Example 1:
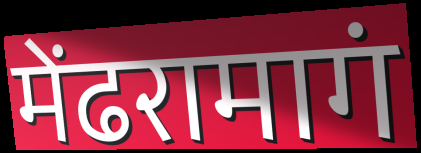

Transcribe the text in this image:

मेंढरामागं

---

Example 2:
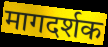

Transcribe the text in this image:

मागदर्शक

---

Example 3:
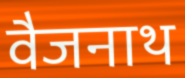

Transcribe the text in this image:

वैजनाथ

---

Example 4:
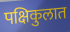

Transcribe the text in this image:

पक्षिकुलात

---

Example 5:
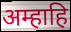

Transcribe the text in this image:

अम्हाहि